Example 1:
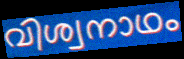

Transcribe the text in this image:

വിശ്വനാഥം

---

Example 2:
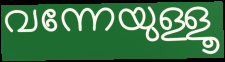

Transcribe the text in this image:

വന്നേയുള്ളൂ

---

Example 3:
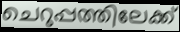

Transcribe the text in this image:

ചെറുപ്പത്തിലേക്ക്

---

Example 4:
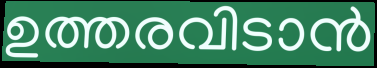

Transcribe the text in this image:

ഉത്തരവിടാൻ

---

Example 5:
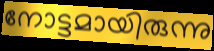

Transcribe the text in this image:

നോട്ടമായിരുന്നു